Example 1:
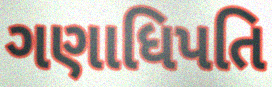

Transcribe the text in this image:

ગણાધિપતિ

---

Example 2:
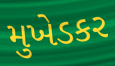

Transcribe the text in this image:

મુખેડકર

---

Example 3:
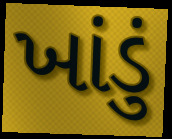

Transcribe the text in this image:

ખાંડું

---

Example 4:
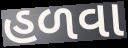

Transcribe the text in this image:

હળવા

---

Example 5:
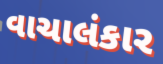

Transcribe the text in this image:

વાચાલંકાર